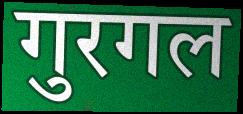
गुरगल